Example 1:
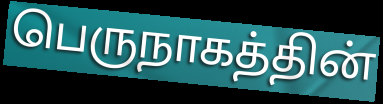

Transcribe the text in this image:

பெருநாகத்தின்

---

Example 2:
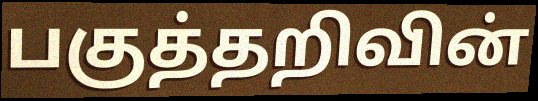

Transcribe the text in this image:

பகுத்தறிவின்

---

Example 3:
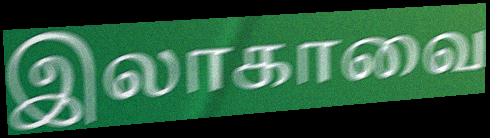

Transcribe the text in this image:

இலாகாவை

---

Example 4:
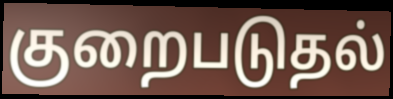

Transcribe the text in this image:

குறைபடுதல்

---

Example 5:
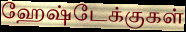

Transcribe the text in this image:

ஹேஷ்டேக்குகள்